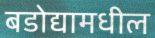
बडोद्यामधील